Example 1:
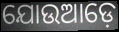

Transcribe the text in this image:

ଯୋଉଆଡ଼େ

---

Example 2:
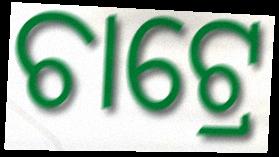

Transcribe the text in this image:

ଚାଟ୍ରେ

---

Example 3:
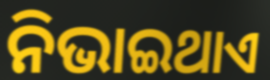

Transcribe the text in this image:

ନିଭାଇଥାଏ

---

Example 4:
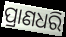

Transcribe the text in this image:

ପ୍ରାଣଧରି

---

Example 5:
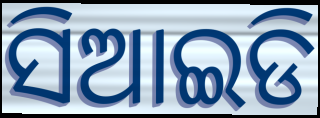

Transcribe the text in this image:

ସିଆଇଡି